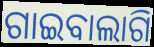
ଗାଇବାଲାଗି